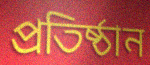
প্ৰতিষ্ঠান